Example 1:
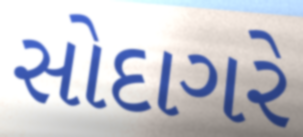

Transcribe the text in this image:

સોદાગરે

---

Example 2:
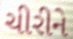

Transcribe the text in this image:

ચીરીને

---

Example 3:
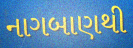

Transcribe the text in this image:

નાગબાણથી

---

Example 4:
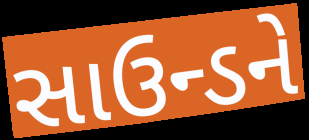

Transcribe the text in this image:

સાઉન્ડને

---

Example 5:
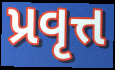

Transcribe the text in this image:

પ્રવૃત્ત